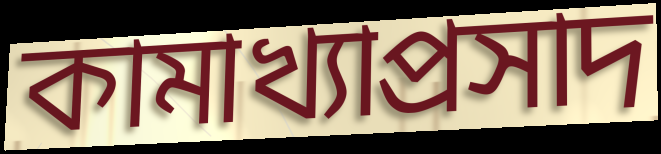
কামাখ্যাপ্রসাদ